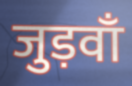
जुड़वाँ